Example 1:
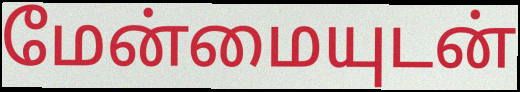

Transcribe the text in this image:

மேன்மையுடன்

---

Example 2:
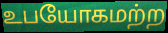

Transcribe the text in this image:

உபயோகமற்ற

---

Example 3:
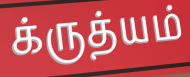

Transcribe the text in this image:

க்ருத்யம்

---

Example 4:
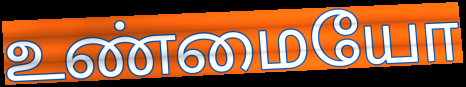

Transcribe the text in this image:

உண்மையோ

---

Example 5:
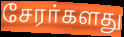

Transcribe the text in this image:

சேரர்களது